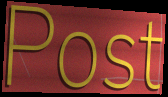
Post